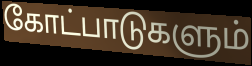
கோட்பாடுகளும்